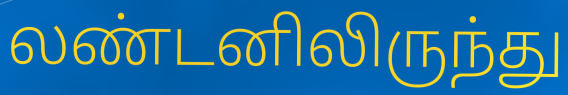
லண்டனிலிருந்து